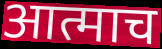
आत्माच